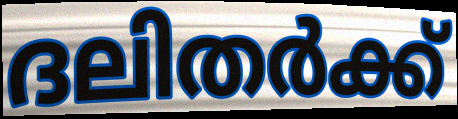
ദലിതർക്ക്